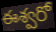
ఈశ్వరో